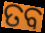
ତବ